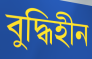
বুদ্ধিহীন